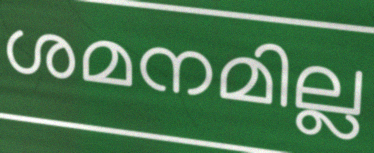
ശമനമില്ല